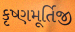
કૃષ્ણમૂર્તિજી